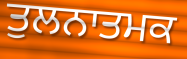
ਤੁਲਨਾਤਮਕ